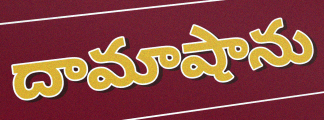
దామాషాను